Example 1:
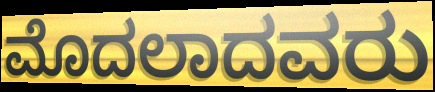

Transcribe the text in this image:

ಮೊದಲಾದವರು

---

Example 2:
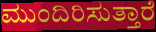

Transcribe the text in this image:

ಮುಂದಿರಿಸುತ್ತಾರೆ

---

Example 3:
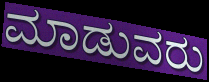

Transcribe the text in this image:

ಮಾಡುವರು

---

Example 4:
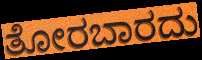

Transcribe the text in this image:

ತೋರಬಾರದು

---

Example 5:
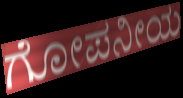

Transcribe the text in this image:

ಗೋಪನೀಯ